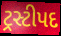
ટ્રસ્ટીપદ